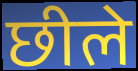
छीले